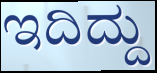
ಇದಿದ್ದು